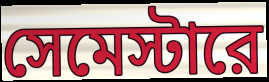
সেমেস্টারে